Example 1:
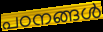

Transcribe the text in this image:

പഠനങ്ങൾ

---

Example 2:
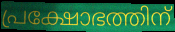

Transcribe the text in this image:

പ്രക്ഷോഭത്തിന്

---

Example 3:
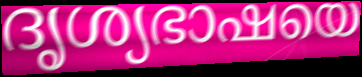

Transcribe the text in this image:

ദൃശ്യഭാഷയെ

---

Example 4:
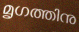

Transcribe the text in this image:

മൃഗത്തിനു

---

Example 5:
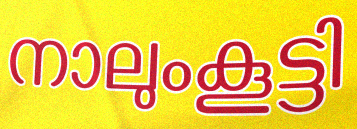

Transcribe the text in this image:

നാലുംകൂട്ടി